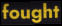
fought